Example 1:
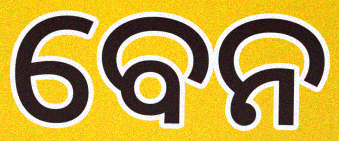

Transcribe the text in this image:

ବେନ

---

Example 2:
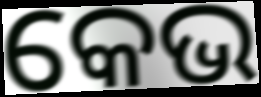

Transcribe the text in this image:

କେଭ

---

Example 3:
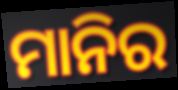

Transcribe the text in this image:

ମାନିର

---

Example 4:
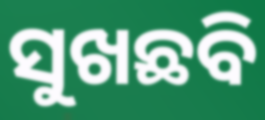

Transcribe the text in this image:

ସୁଖଛବି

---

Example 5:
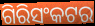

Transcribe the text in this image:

ଗିରିସଂକଟର